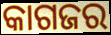
କାଗଜର